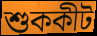
শুককীট